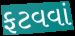
ફટવવાં